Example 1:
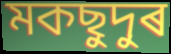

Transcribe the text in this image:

মকছুদুৰ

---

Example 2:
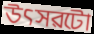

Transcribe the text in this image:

উৎসৱটো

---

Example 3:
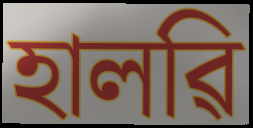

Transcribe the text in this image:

হালৱি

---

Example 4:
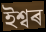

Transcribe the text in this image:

ইশ্বৰ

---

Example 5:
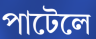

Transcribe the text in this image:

পাটেলে